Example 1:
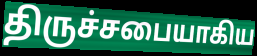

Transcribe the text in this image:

திருச்சபையாகிய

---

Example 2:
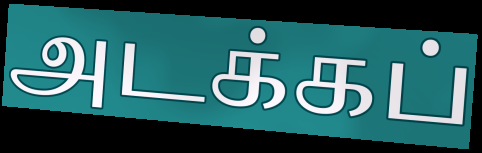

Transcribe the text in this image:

அடக்கப்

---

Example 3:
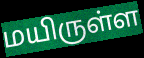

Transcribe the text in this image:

மயிருள்ள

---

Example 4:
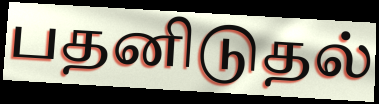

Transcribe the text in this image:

பதனிடுதல்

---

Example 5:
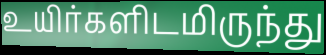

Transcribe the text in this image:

உயிர்களிடமிருந்து